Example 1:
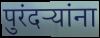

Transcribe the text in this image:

पुरंदऱ्यांना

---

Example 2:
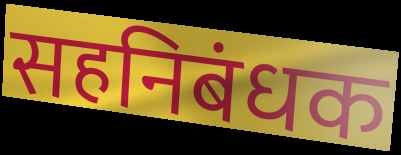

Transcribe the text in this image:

सहनिबंधक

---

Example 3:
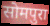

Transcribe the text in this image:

सोमपुरा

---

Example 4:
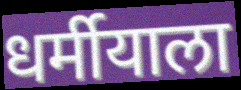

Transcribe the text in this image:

धर्मीयाला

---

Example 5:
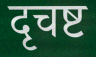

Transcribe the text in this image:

दृचष्ट